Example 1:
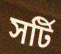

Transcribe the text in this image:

সর্টি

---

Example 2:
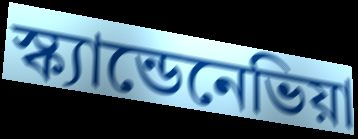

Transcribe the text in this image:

স্ক্যান্ডেনেভিয়া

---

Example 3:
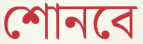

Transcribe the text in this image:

শোনবে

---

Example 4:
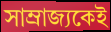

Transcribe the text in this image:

সাম্রাজ্যকেই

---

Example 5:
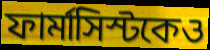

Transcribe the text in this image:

ফার্মাসিস্টকেও